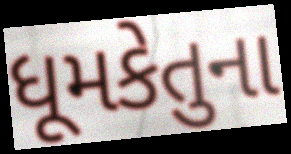
ધૂમકેતુના